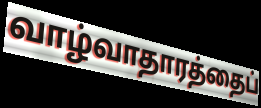
வாழ்வாதாரத்தைப்